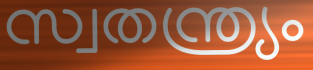
സ്വതന്ത്ര്യം